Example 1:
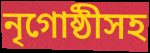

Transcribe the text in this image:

নৃগোষ্ঠীসহ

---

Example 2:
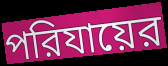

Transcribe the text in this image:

পরিযায়ের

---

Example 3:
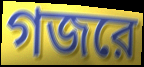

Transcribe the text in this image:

গজরে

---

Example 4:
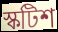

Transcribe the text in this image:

স্কটিশ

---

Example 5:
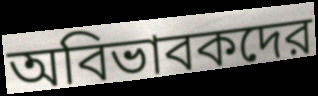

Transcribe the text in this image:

অবিভাবকদের